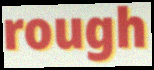
rough